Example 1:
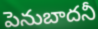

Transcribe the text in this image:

పెనుబాదనీ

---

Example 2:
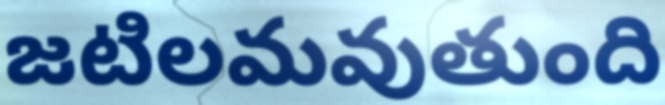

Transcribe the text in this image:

జటిలమవుతుంది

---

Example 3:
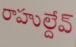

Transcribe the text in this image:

రాహుల్దేవ్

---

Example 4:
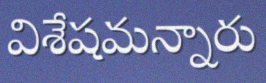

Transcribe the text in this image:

విశేషమన్నారు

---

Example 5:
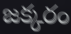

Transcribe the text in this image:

జక్కరం